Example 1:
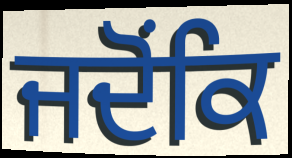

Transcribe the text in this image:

ਜਦੋਂਕਿ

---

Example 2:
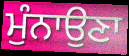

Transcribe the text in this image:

ਮੁੰਨਾਉਣਾ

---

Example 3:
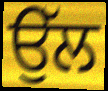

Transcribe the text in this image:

ਉੱਲ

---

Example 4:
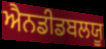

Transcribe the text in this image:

ਐਨਡੀਡਬਲਯੂ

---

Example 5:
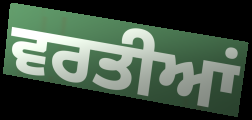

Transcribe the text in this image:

ਵਰਤੀਆਂ